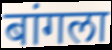
बांगला